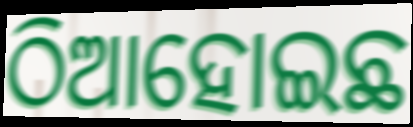
ଠିଆହୋଇଛ